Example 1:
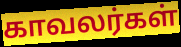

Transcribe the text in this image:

காவலர்கள்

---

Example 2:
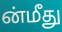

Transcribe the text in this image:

ன்மீது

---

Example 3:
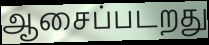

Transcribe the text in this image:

ஆசைப்படறது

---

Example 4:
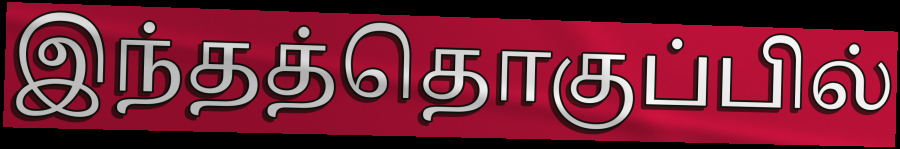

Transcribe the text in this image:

இந்தத்தொகுப்பில்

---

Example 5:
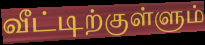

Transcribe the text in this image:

வீட்டிற்குள்ளும்